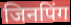
जिनपिंग